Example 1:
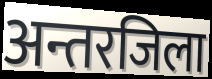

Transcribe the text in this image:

अन्तरजिला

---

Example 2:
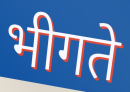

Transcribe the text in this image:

भीगते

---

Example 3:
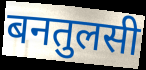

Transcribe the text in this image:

बनतुलसी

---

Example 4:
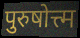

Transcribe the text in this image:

पुरुषोत्त्म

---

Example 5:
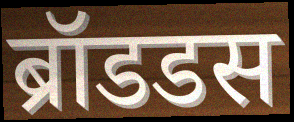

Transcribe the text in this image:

ब्रॉडडस